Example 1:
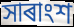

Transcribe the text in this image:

সাৰাংশ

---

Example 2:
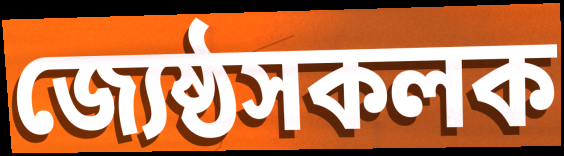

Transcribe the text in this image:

জ্যেষ্ঠসকলক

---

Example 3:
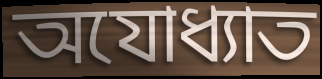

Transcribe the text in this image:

অযোধ্যাত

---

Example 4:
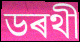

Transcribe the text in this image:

ডৰথী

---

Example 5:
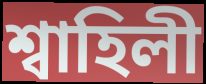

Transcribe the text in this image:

শ্বাহিলী